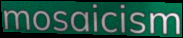
mosaicism